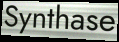
Synthase